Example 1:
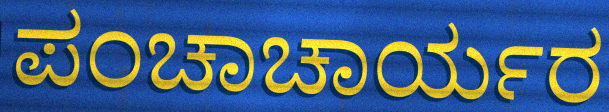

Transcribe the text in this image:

ಪಂಚಾಚಾರ್ಯರ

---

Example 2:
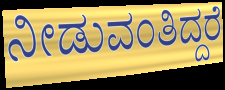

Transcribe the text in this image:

ನೀಡುವಂತಿದ್ದರೆ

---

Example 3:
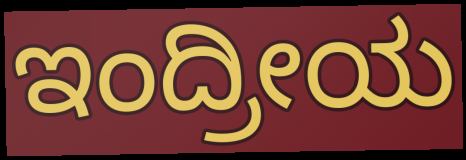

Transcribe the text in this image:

ಇಂದ್ರೀಯ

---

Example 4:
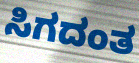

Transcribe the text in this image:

ಸಿಗದಂತ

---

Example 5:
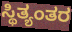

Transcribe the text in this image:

ಸ್ಥಿತ್ಯಂತರ